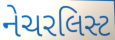
નેચરલિસ્ટ